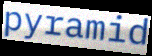
pyramid